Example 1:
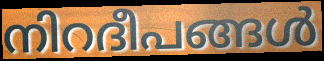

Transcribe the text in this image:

നിറദീപങ്ങൾ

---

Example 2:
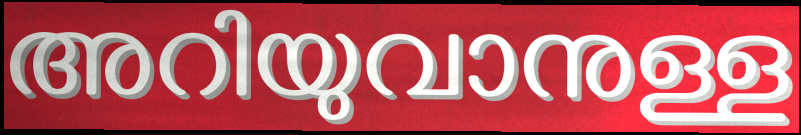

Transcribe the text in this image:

അറിയുവാനുള്ള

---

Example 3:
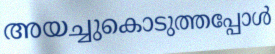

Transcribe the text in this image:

അയച്ചുകൊടുത്തപ്പോൾ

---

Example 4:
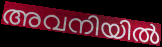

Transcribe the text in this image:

അവനിയിൽ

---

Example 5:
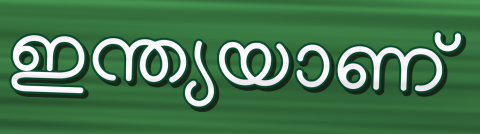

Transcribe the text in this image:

ഇന്ത്യയാണ്